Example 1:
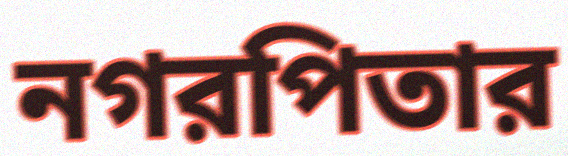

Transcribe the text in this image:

নগরপিতার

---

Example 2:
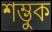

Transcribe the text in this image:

শম্ভুক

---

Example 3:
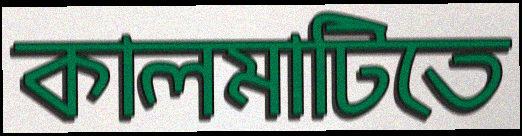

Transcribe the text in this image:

কালমাটিতে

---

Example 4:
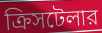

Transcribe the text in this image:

ক্রিসটেলার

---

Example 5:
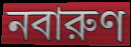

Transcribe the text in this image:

নবারুণ